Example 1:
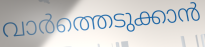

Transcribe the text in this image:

വാർത്തെടുക്കാൻ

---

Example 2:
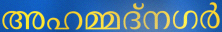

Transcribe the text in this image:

അഹമ്മദ്നഗർ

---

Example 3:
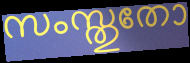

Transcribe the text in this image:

സംസ്തുതോ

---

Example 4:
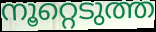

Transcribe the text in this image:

നൂറ്റെടുത്ത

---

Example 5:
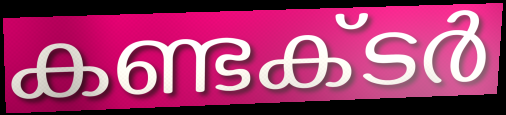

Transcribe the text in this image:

കണ്ടക്‌ടർ